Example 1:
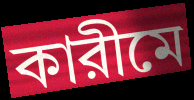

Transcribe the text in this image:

কারীমে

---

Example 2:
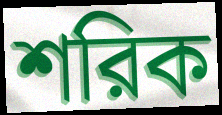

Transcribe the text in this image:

শরিক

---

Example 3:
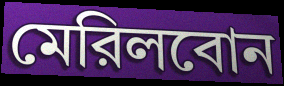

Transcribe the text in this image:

মেরিলবোন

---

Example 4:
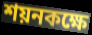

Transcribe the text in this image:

শয়নকক্ষে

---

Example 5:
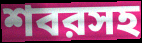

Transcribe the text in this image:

শবরসহ